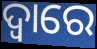
ଦ୍ବାରେ